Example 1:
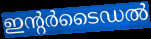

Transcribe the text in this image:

ഇന്റർടൈഡൽ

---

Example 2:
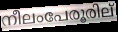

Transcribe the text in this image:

നീലംപേരൂരില്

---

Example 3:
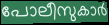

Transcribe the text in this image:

പോലീസുകാർ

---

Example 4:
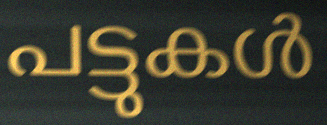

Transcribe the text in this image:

പട്ടുകൾ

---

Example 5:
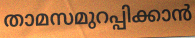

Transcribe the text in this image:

താമസമുറപ്പിക്കാൻ